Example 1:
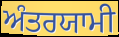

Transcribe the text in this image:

ਅੰਤਰਯਾਮੀ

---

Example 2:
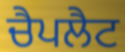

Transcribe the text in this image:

ਚੈਪਲੈਟ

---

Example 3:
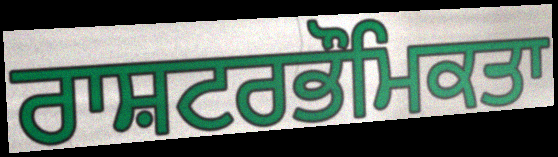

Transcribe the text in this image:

ਰਾਸ਼ਟਰਭੌਮਿਕਤਾ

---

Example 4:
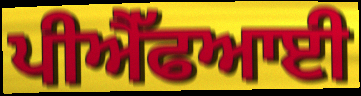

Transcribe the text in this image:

ਪੀਐੱਫਆਈ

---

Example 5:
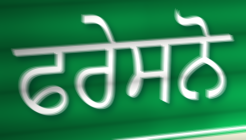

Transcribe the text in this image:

ਫਰੇਸਨੋ